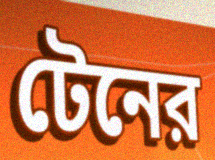
টেনের